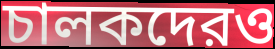
চালকদেরও